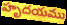
హృదయము